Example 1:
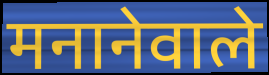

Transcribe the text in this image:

मनानेवाले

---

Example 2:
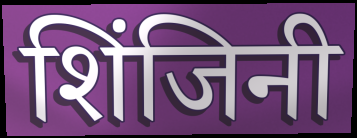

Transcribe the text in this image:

शिंजिनी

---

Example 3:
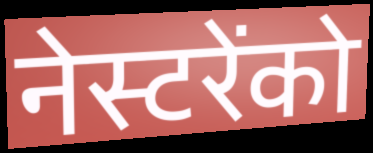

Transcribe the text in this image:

नेस्टरेंको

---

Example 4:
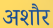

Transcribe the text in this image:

अशौर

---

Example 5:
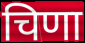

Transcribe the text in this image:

चिणा